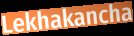
Lekhakancha